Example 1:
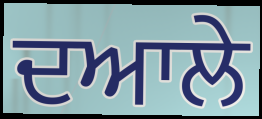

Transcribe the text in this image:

ਦਆਲੇ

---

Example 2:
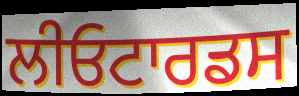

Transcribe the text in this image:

ਲੀਓਟਾਰਡਸ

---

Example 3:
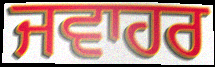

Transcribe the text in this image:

ਜਵਾਹਰ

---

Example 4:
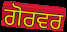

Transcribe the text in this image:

ਗੋਰਵਰ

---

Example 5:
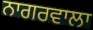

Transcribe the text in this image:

ਨਾਗਰਵਾਲਾ